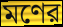
মণের